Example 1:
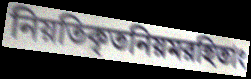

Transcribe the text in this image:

নিয়তিকৃতনিয়মরহিতাং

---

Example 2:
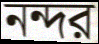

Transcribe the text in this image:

নন্দর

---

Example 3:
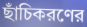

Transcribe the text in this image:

ছাঁচিকরণের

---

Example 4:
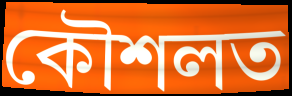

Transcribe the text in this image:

কৌশলত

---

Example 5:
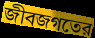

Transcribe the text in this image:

জীবজগতের